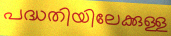
പദ്ധതിയിലേക്കുള്ള